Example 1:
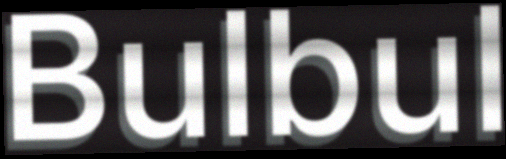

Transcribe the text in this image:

Bulbul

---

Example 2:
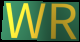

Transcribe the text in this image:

WR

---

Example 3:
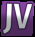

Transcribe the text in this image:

JV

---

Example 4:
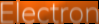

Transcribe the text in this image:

Electron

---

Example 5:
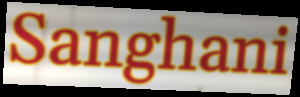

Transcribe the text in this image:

Sanghani